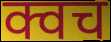
क्वच